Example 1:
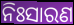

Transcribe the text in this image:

ନିଃସାରଣ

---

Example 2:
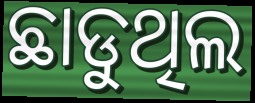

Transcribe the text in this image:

ଛାଡୁଥିଲ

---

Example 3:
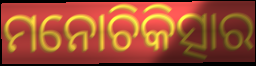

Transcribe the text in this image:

ମନୋଚିକିତ୍ସାର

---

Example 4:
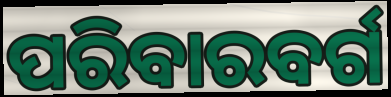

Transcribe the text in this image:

ପରିବାରବର୍ଗ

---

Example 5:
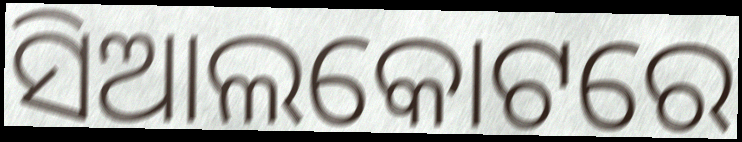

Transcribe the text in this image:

ସିଆଲକୋଟରେ